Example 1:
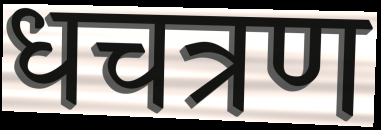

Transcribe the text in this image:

धचत्रण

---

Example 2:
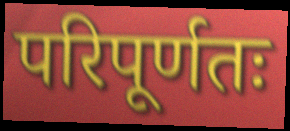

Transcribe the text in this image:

परिपूर्णतः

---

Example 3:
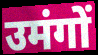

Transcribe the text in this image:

उमंगों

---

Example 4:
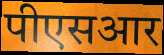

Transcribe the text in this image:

पीएसआर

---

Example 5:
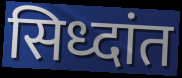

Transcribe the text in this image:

सिध्दांत